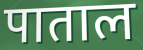
पाताल